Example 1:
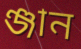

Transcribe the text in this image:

ঞ্জান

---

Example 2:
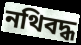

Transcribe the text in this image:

নথিবদ্ধ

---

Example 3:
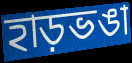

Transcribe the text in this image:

হাড়ভঙা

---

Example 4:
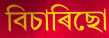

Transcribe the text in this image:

বিচাৰিছো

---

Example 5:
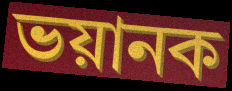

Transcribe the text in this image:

ভয়ানক